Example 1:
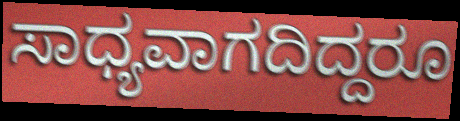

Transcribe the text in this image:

ಸಾಧ್ಯವಾಗದಿದ್ದರೂ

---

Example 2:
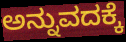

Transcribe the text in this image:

ಅನ್ನುವದಕ್ಕೆ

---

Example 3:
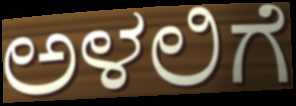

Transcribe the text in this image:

ಅಳಲಿಗೆ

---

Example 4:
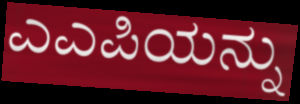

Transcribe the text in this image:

ಎಎಪಿಯನ್ನು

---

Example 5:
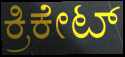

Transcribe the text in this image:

ಕ್ರಿಕೇಟ್